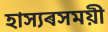
হাস্যৰসময়ী